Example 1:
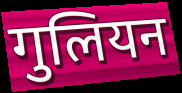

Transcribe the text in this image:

गुलियन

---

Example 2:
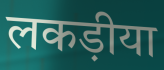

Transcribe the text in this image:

लकड़ीया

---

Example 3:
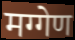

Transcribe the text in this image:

मग्गेण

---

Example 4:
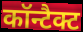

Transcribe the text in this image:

कॉन्टैक्ट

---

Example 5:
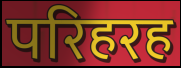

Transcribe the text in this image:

परिहरह